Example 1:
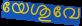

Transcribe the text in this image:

യേശുവേ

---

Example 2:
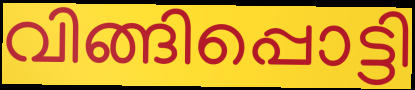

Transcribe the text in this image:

വിങ്ങിപ്പൊട്ടി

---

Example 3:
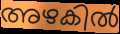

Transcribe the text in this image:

അഴകിൽ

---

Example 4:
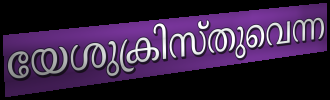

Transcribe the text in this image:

യേശുക്രിസ്തുവെന്ന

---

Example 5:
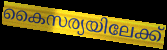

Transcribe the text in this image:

കൈസര്യയിലേക്ക്